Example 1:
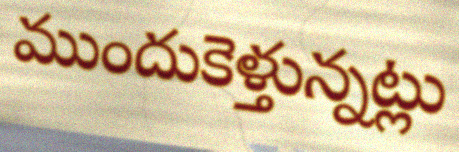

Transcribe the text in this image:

ముందుకెళ్తున్నట్లు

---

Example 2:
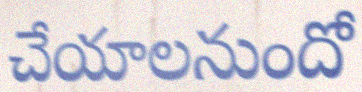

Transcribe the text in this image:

చేయాలనుందో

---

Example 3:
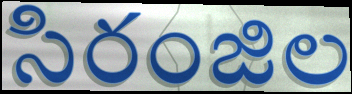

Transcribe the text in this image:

సిరంజిల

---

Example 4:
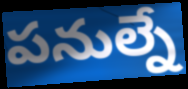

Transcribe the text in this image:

పనుల్నే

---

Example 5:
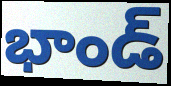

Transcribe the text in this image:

భాండ్